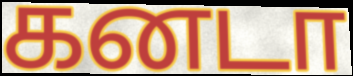
கனடா